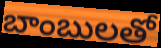
బాంబులతో